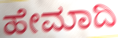
ಹೇಮಾದಿ